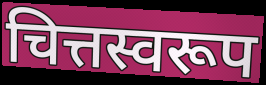
चित्तस्वरूप